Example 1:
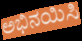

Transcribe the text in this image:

ಅಭಿನಯಿಸಿ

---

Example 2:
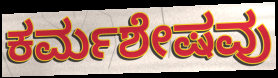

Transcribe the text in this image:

ಕರ್ಮಶೇಷವು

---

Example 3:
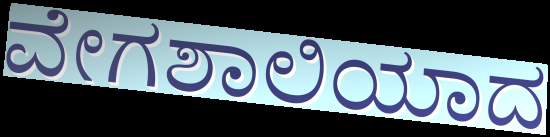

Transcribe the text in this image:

ವೇಗಶಾಲಿಯಾದ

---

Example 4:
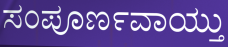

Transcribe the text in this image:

ಸಂಪೂರ್ಣವಾಯ್ತು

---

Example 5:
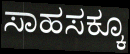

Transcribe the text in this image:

ಸಾಹಸಕ್ಕೂ